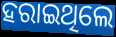
ହରାଇଥିଲେ